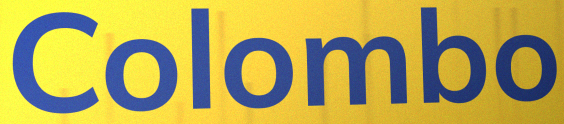
Colombo